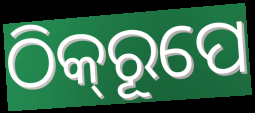
ଠିକ୍‍ରୂପେ